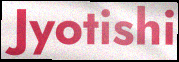
Jyotishi